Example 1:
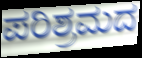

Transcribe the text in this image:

ಪರಿಶ್ರಮದ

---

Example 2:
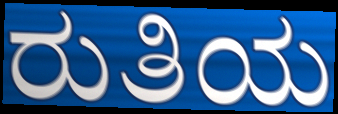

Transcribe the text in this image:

ರುತಿಯ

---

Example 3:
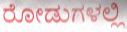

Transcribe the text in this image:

ರೋಡುಗಳಲ್ಲಿ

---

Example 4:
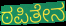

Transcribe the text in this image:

ಠಪಿತೇನ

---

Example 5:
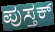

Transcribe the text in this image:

ಪುಸ್ತಕ್